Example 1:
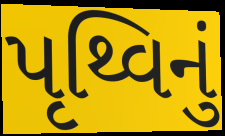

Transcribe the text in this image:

પૃથ્વિનું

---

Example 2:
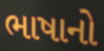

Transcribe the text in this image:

ભાષાનો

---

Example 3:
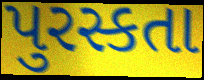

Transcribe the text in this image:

પુરસ્કતા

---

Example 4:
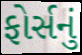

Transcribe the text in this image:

ફોર્સનું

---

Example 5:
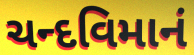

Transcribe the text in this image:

ચન્દવિમાનં